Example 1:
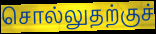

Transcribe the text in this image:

சொல்லுதற்குச்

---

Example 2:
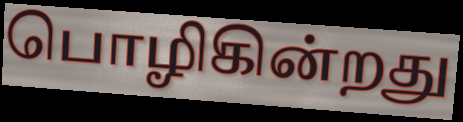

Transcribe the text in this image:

பொழிகின்றது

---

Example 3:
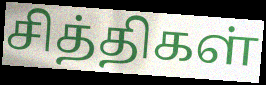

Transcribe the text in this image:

சித்திகள்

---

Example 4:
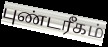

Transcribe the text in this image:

புண்டரீகம்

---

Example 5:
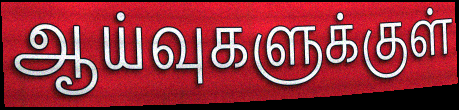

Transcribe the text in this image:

ஆய்வுகளுக்குள்